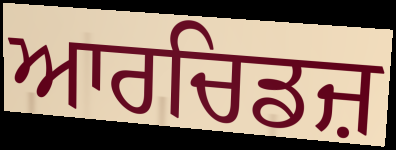
ਆਰਚਿਡਜ਼